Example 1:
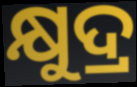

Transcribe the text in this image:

କ୍ଷୁଦ୍ର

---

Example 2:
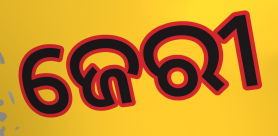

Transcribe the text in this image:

ଜେରୀ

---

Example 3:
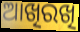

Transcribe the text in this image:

ଆଖିରଖି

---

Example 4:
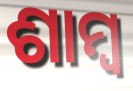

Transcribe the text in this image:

ଶାମ୍ୱ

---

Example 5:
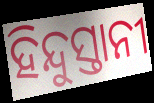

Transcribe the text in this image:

ହିନ୍ଦୁସ୍ତାନୀ